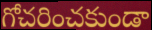
గోచరించకుండా